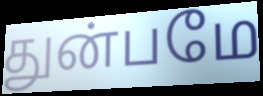
துன்பமே